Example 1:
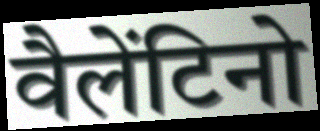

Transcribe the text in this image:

वैलेंटिनो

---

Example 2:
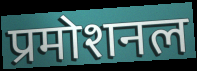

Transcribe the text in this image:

प्रमोशनल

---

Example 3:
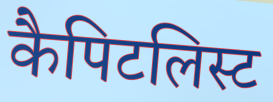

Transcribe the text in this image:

कैपिटलिस्ट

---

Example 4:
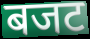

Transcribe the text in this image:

बजट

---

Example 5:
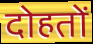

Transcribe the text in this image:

दोहतों